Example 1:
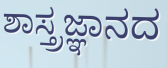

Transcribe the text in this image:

ಶಾಸ್ತ್ರಜ್ಞಾನದ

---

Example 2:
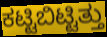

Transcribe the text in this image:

ಕಟ್ಟಿಬಿಟ್ಟಿತ್ತು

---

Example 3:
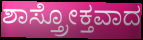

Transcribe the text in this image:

ಶಾಸ್ತ್ರೋಕ್ತವಾದ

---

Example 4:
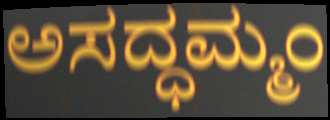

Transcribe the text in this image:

ಅಸದ್ಧಮ್ಮಂ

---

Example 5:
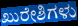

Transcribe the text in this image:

ಖುರೇಶಿಗಳು